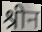
श्रीन